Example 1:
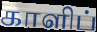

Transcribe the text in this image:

காளிப்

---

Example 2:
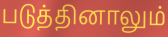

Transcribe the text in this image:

படுத்தினாலும்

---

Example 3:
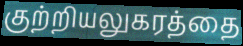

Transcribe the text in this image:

குற்றியலுகரத்தை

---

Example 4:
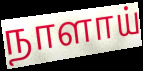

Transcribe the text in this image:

நாளாய்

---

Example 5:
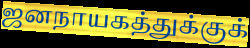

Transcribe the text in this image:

ஜனநாயகத்துக்குக்